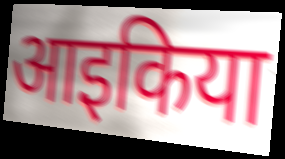
आइकिया